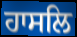
ਹਾਸਲਿ